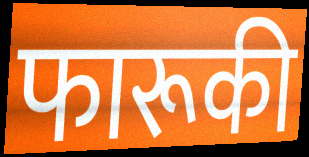
फारूकी